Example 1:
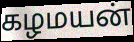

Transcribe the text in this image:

கழமயன்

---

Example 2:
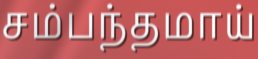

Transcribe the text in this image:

சம்பந்தமாய்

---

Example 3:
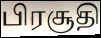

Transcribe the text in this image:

பிரசூதி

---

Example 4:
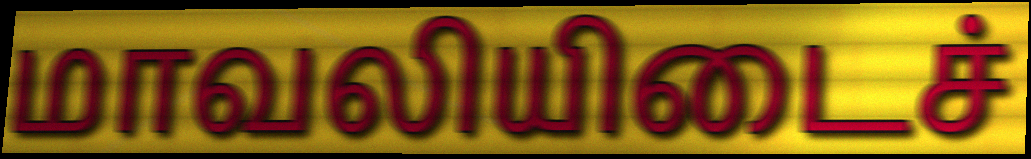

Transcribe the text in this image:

மாவலியிடைச்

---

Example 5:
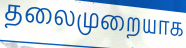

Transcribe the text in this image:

தலைமுறையாக